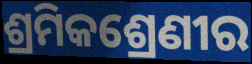
ଶ୍ରମିକଶ୍ରେଣୀର